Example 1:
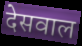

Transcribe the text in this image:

देसवाल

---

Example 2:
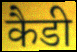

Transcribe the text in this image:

कैडी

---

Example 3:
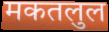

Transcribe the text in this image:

मकतलुल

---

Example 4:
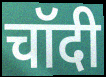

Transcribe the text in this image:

चॉदी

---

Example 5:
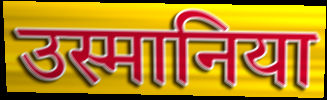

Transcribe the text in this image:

उस्मानिया